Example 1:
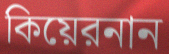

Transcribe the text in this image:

কিয়েরনান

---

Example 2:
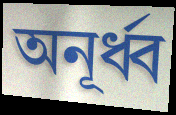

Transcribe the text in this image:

অনূর্ধ্ব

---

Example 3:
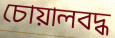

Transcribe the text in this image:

চোয়ালবদ্ধ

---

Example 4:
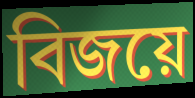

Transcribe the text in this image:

বিজয়ে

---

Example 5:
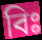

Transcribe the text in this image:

বিঃ